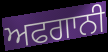
ਅਫਗਾਨੀ